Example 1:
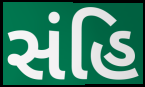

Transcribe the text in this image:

સંહિ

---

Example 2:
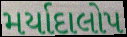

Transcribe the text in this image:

મર્યાદાલોપ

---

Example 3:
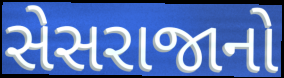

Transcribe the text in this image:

સેસરાજાનો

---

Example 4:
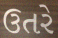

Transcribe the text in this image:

ઉતરે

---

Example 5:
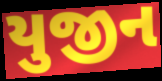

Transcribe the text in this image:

યુજીન